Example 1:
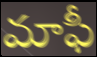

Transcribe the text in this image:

మాఫీ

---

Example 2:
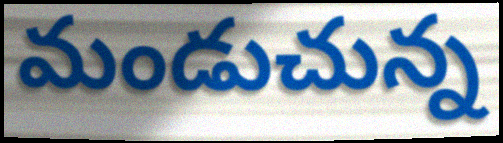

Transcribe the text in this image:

మండుచున్న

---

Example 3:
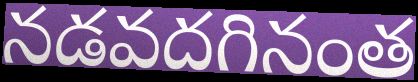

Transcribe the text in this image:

నడవదగినంత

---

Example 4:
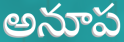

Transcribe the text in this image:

అనూప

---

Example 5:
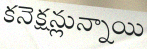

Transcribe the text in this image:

కనెక్షన్లున్నాయి